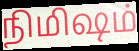
நிமிஷம்